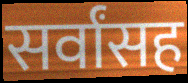
सर्वांसह